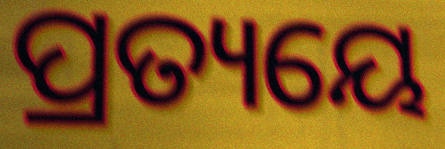
ପ୍ରତ୍ୟୟେ